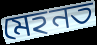
মেহনত